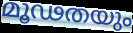
മൂഢതയും